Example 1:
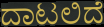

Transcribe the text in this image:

ದಾಟಲಿದೆ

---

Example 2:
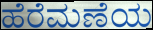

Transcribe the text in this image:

ಹೆರೆಮಣೆಯ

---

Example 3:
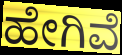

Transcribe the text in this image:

ಹೇಗಿವೆ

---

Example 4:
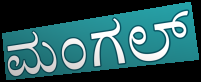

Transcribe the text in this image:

ಮಂಗಲ್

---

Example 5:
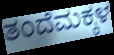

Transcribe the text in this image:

ತಂದೆಮಕ್ಕಳ